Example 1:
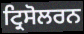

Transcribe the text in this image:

ਟ੍ਰਿਸੋਲਰਨ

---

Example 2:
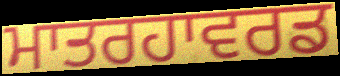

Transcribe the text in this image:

ਮਾਤਰਹਾਵਰਡ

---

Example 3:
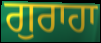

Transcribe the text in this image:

ਗੁਰਾਹਾ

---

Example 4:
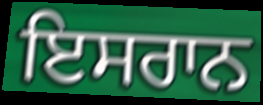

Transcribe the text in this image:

ਇਸਰਾਨ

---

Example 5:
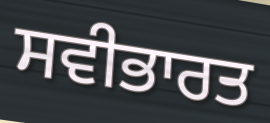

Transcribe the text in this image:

ਸਵੀਭਾਰਤ